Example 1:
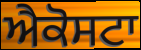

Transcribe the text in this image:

ਐਕੋਸਟਾ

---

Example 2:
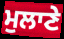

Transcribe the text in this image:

ਮੁਲਾਣੇ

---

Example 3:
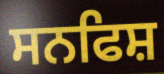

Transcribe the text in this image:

ਸਨਫਿਸ਼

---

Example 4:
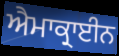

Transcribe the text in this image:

ਐਮਾਕ੍ਰਾਈਨ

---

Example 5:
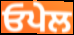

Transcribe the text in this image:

ਓਪੇਲ